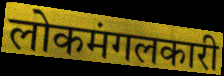
लोकमंगलकारी